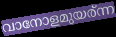
വാനോളമുയര്ന്ന